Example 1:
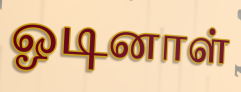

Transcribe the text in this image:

ஓடினாள்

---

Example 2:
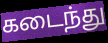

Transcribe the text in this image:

கடைந்து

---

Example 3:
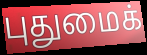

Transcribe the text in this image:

புதுமைக்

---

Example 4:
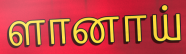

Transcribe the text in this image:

ளானாய்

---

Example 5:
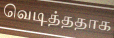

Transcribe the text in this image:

வெடித்ததாக